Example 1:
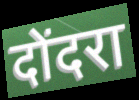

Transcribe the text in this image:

दोंदरा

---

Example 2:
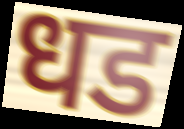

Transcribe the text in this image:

धड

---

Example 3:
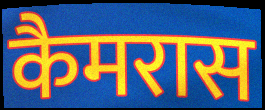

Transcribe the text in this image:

कैमरास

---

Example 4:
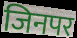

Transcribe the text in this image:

जिनपर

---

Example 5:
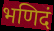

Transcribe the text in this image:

भणिदं